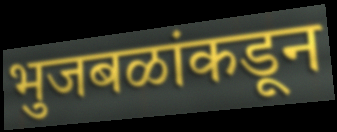
भुजबळांकडून